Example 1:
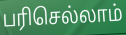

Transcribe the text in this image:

பரிசெல்லாம்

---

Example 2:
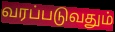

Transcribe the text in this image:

வரப்படுவதும்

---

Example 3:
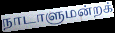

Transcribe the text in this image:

நாடாளுமன்றக்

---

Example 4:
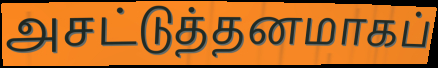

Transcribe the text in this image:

அசட்டுத்தனமாகப்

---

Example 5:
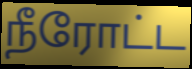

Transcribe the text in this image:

நீரோட்ட